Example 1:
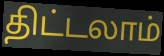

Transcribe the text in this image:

திட்டலாம்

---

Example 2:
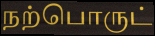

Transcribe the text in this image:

நற்பொருட்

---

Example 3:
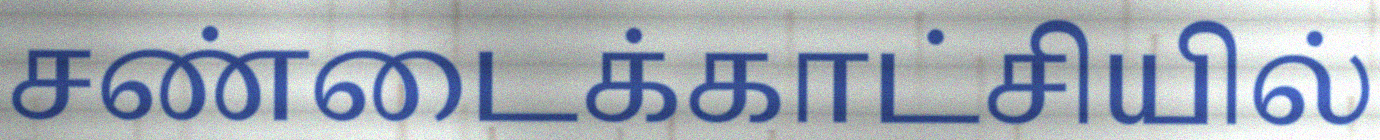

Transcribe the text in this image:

சண்டைக்காட்சியில்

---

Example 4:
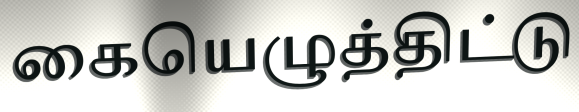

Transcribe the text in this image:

கையெழுத்திட்டு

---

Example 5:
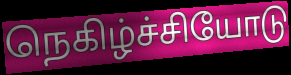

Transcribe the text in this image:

நெகிழ்ச்சியோடு